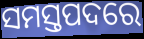
ସମସ୍ତପଦରେ